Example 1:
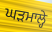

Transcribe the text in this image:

ਘੜਮਾਲ੍ਹੇ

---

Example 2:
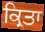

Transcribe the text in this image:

ਕ੍ਰਿਤਾ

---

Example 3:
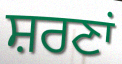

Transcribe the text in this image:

ਸ਼ਰਣਾਂ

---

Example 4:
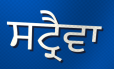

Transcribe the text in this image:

ਸਟ੍ਰੈਵਾ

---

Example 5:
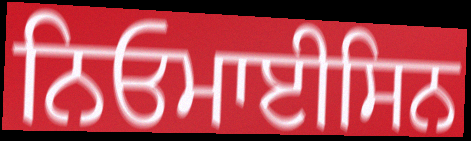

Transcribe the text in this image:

ਨਿਓਮਾਈਸਿਨ